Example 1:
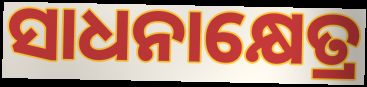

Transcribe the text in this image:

ସାଧନାକ୍ଷେତ୍ର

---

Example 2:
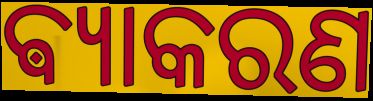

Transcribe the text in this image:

ଵ୍ଯାକରଣ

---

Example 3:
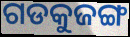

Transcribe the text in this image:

ଗଡକୁଜଙ୍ଗ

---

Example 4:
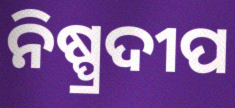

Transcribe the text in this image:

ନିଷ୍ପ୍ରଦୀପ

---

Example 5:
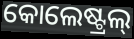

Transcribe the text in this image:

କୋଲେଷ୍ଟ୍ରଲ୍